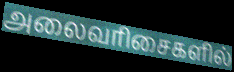
அலைவரிசைகளில்